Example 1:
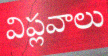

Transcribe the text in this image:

విప్లవాలు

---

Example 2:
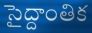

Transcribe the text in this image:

సైద్దాంతిక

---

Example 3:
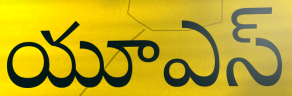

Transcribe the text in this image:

యూఎస్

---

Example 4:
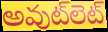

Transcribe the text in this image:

అవుట్‌లెట్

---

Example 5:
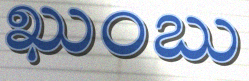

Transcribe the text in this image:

ఖుంబు